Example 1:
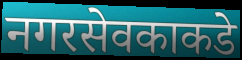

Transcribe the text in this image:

नगरसेवकाकडे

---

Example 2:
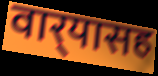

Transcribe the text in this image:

वार्‍यासह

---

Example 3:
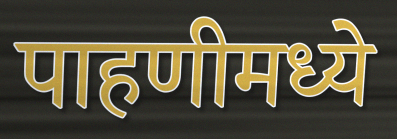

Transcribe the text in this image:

पाहणीमध्ये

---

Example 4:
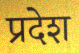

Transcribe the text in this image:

प्रदेश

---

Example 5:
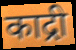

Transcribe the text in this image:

काद्री